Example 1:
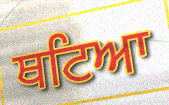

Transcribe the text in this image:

ਥਟਿਆ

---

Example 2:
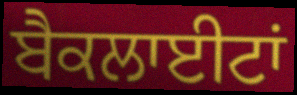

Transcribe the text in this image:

ਬੈਕਲਾਈਟਾਂ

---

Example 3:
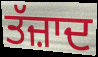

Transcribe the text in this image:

ਤੱਜ਼ਾਦ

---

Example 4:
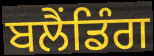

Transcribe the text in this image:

ਬਲੈਂਡਿੰਗ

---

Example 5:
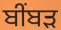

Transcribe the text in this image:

ਬੀਂਬੜ